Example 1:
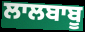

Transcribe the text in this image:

ਲਾਲਬਾਬੂ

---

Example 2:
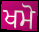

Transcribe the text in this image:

ਖਮੋ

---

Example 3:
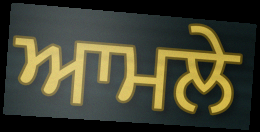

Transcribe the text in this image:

ਆਮਲੇ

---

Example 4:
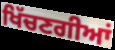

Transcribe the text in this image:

ਖਿੱਚਣਗੀਆਂ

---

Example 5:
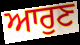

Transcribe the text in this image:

ਆਰੁਣ